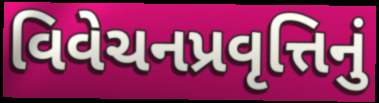
વિવેચનપ્રવૃત્તિનું